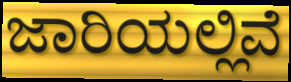
ಜಾರಿಯಲ್ಲಿವೆ